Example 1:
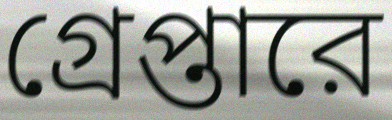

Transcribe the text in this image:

গ্রেপ্তারে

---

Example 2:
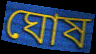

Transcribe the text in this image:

ঘোষ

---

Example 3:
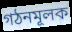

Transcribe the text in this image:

গঠনমূলক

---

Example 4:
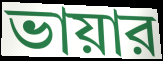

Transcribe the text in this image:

ভায়ার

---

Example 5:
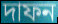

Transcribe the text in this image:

দাফন